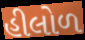
હીલોળ